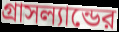
গ্রাসল্যান্ডের